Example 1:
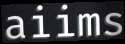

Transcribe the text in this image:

aiims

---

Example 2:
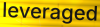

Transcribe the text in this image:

leveraged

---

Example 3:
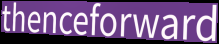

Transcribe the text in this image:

thenceforward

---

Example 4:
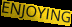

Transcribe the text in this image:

ENJOYING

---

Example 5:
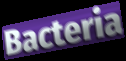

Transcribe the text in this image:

Bacteria